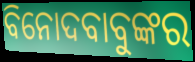
ବିନୋଦବାବୁଙ୍କର